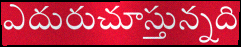
ఎదురుచూస్తున్నది